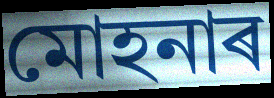
মোহনাৰ